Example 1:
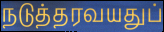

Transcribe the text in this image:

நடுத்தரவயதுப்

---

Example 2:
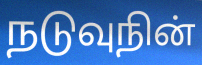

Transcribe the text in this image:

நடுவுநின்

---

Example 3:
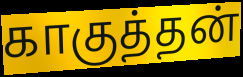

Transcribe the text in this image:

காகுத்தன்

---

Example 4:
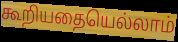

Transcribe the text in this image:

கூறியதையெல்லாம்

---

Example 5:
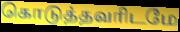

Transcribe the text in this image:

கொடுத்தவரிடமே